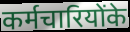
कर्मचारियोंके